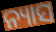
ନ୍ୟାସ